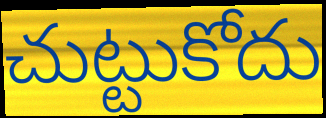
చుట్టుకోదు